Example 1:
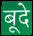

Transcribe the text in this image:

बूदे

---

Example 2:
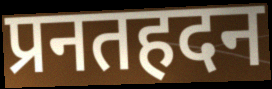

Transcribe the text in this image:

प्रनतहदन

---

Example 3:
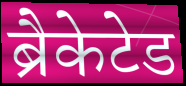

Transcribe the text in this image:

ब्रैकेटेड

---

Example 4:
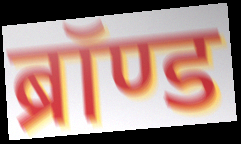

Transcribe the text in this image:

ब्रॉण्ड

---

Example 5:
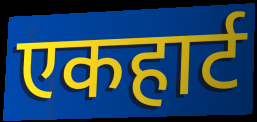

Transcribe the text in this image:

एकहार्ट